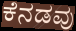
ಕೆನಡವು